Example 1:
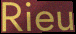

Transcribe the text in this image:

Rieu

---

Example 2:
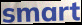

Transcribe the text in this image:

smart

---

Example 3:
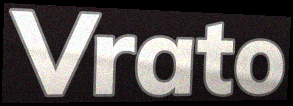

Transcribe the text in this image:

Vrato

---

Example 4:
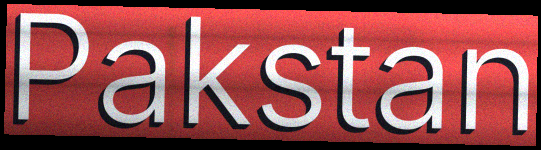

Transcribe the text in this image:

Pakstan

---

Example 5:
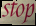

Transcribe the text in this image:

stop